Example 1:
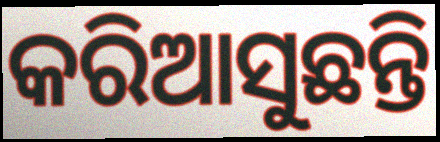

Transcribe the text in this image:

କରିଆସୁଛନ୍ତି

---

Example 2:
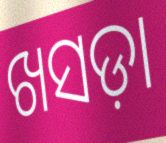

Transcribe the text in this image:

ଖସଡ଼ା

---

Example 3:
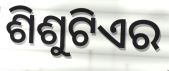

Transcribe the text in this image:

ଶିଶୁଟିଏର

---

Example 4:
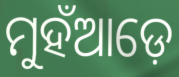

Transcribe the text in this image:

ମୁହଁଆଡ଼େ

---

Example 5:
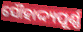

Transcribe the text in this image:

ସୌହାଦ୍ଦ୍ୟପୂର୍ଣ୍ଣ